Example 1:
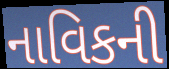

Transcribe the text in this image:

નાવિકની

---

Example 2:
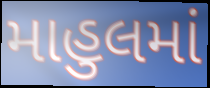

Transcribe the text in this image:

માહુલમાં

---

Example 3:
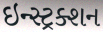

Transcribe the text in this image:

ઇન્સ્ટ્રક્શન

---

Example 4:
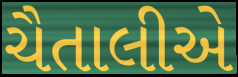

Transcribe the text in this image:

ચૈતાલીએ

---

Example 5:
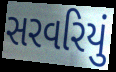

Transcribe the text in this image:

સરવરિયું